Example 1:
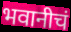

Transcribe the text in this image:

भवानीचं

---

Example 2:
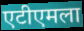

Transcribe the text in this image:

एटीएमला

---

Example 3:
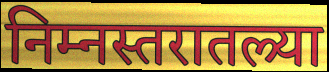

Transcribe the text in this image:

निम्नस्तरातल्या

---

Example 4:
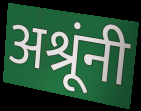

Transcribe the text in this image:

अश्रूंनी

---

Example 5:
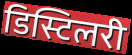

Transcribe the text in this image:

डिस्टिलरी